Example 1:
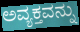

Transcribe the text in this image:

ಅವ್ಯಕ್ತವನ್ನು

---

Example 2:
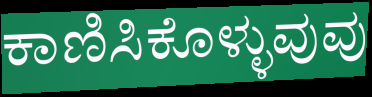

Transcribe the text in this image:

ಕಾಣಿಸಿಕೊಳ್ಳುವುವು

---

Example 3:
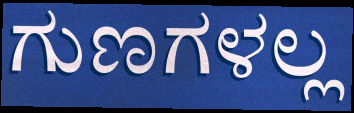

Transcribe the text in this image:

ಗುಣಗಳಲ್ಲ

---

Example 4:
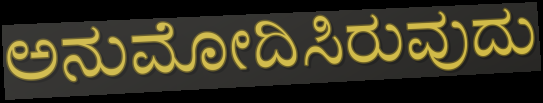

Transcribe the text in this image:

ಅನುಮೋದಿಸಿರುವುದು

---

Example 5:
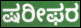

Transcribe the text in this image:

ಷರೀಫರ